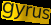
gyrus